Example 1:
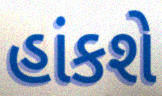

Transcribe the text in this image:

હાંકશે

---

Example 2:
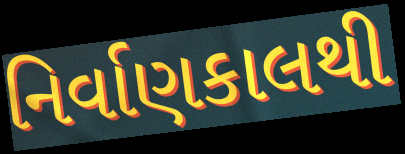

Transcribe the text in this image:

નિર્વાણકાલથી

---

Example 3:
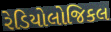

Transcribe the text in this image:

રેડિયોલોજિકલ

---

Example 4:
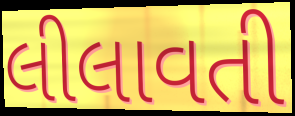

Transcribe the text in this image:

લીલાવતી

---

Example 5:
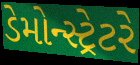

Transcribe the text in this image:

ડેમોન્સ્ટ્રેટરે